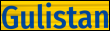
Gulistan